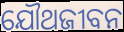
ଯୌଥଜୀବନ